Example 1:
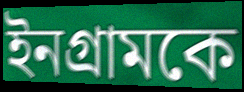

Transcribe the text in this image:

ইনগ্রামকে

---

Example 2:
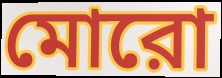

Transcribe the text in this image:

মোরো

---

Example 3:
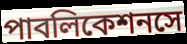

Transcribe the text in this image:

পাবলিকেশনসে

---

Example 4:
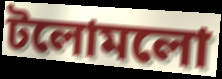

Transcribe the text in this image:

টলোমলো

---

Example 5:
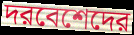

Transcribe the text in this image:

দরবেশেদের